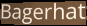
Bagerhat